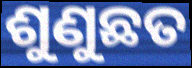
ଶୁଣୁଛତ